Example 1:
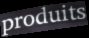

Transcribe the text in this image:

produits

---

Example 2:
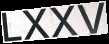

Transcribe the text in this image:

LXXV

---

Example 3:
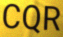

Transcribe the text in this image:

CQR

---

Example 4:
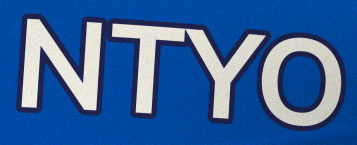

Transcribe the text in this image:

NTYO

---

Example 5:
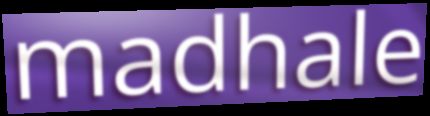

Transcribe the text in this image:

madhale